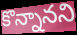
కొన్నానని